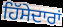
ਹਿੱਸੇਦਾਰਾਂ